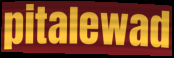
pitalewad